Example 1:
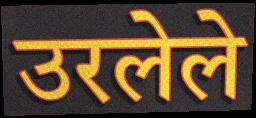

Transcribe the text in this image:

उरलेले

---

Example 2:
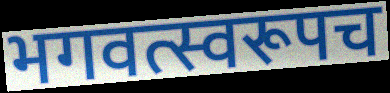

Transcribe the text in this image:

भगवत्स्वरूपच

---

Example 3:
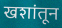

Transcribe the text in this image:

खशांतून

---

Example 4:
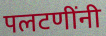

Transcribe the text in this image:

पलटणींनी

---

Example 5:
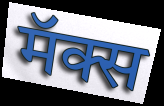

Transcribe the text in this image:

मॅक्स